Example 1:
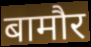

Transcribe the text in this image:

बामौर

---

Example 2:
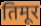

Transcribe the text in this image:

तिमूर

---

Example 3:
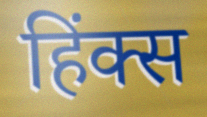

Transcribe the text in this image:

हिंक्स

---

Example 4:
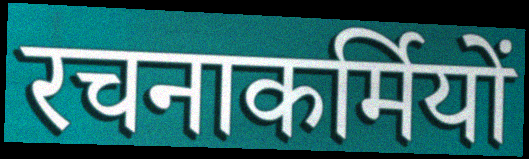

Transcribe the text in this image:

रचनाकर्मियों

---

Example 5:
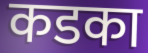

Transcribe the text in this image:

कडका